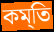
কম্‌তি